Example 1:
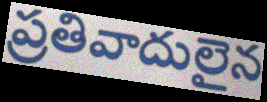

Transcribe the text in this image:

ప్రతివాదులైన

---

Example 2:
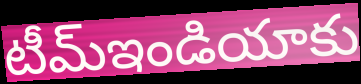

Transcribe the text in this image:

టీమ్ఇండియాకు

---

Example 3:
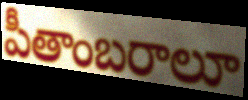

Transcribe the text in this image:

పీతాంబరాలూ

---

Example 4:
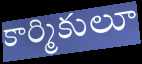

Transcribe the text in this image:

కార్మికులూ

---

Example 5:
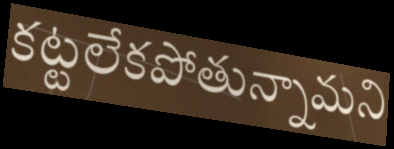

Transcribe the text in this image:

కట్టలేకపోతున్నామని